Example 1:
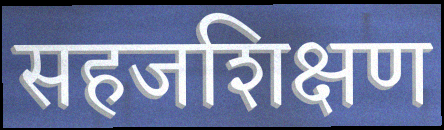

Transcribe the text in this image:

सहजशिक्षण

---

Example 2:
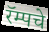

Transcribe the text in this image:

रॅम्पचे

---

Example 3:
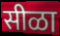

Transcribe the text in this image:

सीळा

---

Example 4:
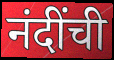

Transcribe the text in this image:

नंदींची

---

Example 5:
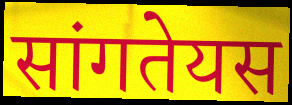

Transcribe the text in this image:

सांगतेयस